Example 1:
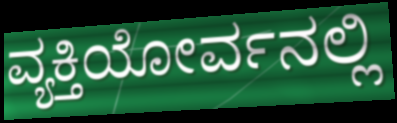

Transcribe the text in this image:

ವ್ಯಕ್ತಿಯೋರ್ವನಲ್ಲಿ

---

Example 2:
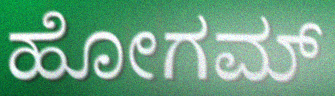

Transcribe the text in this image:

ಹೋಗಮ್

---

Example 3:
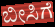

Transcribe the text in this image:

ಬೀಸಿಗೆ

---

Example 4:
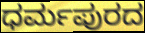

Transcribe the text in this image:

ಧರ್ಮಪುರದ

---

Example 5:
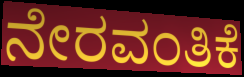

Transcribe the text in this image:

ನೇರವಂತಿಕೆ